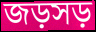
জড়সড়